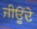
ਜੀਊਂਦੇ